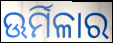
ଊର୍ମିଳାର